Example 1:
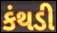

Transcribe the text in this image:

કંથડી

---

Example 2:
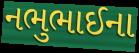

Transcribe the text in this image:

નભુભાઈના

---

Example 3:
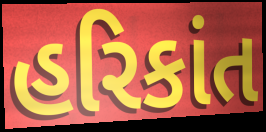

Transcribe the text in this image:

હરિકાંત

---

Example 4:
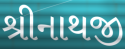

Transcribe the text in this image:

શ્રીનાથજી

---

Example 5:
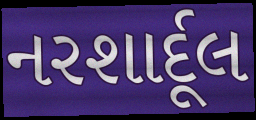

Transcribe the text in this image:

નરશાર્દૂલ